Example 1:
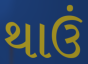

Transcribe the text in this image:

થાઉં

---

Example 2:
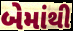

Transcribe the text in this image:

બેમાંથી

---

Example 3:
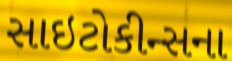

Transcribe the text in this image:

સાઇટોકીન્સના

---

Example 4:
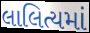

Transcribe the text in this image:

લાલિત્યમાં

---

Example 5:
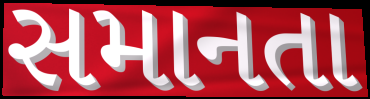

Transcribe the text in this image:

સમાનતા